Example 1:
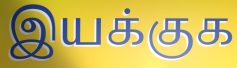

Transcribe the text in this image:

இயக்குக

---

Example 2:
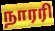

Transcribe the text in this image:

நாரரி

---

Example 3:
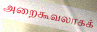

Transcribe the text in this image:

அறைகூவலாகக்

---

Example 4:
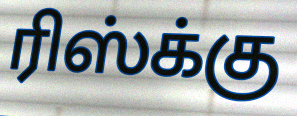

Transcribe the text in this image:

ரிஸ்க்கு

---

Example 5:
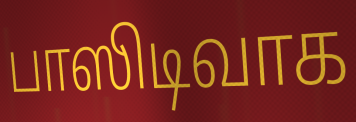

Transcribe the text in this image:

பாஸிடிவாக